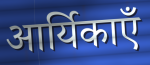
आर्यिकाएँ